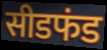
सीडफंड